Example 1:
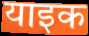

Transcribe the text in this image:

याइक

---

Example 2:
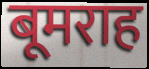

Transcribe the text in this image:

बूमराह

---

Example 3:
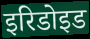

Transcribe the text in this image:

इरिडोइड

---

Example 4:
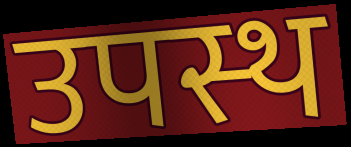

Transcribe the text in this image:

उपस्थ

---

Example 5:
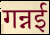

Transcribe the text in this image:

गन्नई